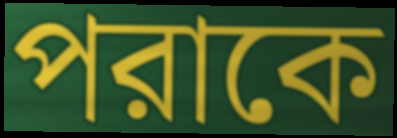
পরাকে